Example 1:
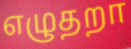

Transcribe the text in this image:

எழுதறா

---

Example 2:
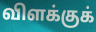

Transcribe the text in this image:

விளக்குக்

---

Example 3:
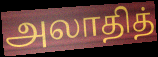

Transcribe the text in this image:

அலாதித்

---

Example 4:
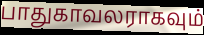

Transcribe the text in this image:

பாதுகாவலராகவும்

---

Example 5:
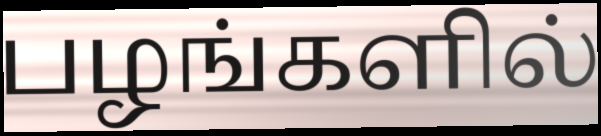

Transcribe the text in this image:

பழங்களில்